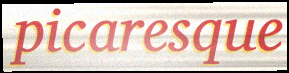
picaresque